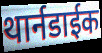
थार्नडाईक